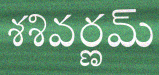
శశివర్ణమ్